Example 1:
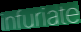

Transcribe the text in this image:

infuriate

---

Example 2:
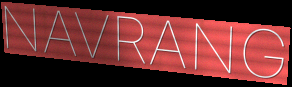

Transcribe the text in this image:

NAVRANG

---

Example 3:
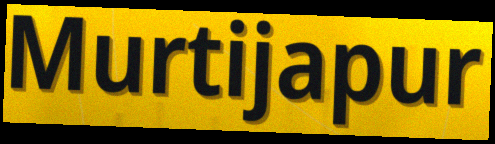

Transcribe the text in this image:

Murtijapur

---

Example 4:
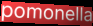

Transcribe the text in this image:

pomonella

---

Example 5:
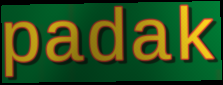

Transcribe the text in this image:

padak